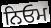
ਨਿਓਮ